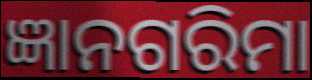
ଜ୍ଞାନଗରିମା